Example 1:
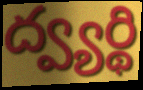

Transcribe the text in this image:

ద్వ్యర్థి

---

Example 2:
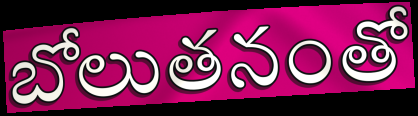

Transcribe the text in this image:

బోలుతనంతో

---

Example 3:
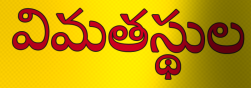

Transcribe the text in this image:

విమతస్థుల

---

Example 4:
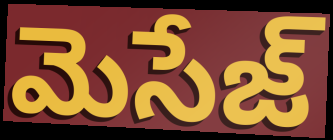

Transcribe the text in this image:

మెసేజ్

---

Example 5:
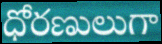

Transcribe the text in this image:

ధోరణులుగా